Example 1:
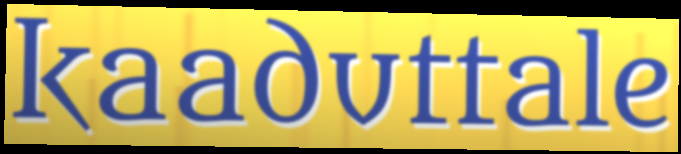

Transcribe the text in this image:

kaaduttale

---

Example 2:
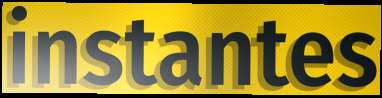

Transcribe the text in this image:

instantes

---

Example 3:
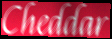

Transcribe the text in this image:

Cheddar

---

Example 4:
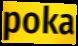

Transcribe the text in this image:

poka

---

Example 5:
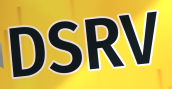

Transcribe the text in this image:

DSRV